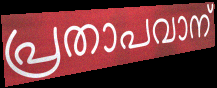
പ്രതാപവാന്